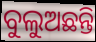
ବୁଲୁଅଛନ୍ତି